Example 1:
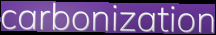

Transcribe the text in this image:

carbonization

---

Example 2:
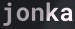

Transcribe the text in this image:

jonka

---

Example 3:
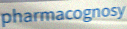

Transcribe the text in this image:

pharmacognosy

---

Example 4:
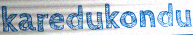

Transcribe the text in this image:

karedukondu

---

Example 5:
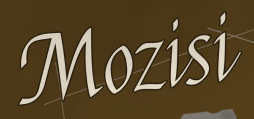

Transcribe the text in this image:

Mozisi